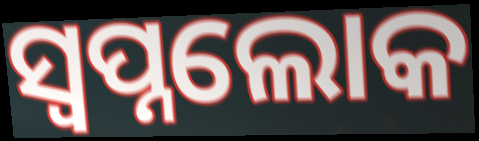
ସ୍ୱପ୍ନଲୋକ